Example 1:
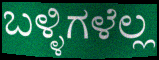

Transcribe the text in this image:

ಬಳ್ಳಿಗಳೆಲ್ಲ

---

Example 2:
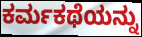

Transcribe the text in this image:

ಕರ್ಮಕಥೆಯನ್ನು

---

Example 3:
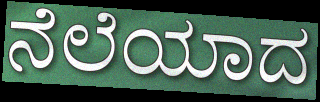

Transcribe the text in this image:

ನೆಲೆಯಾದ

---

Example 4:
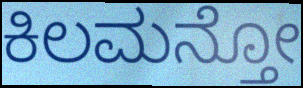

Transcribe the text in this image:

ಕಿಲಮನ್ತೋ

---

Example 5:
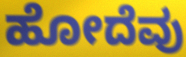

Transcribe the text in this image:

ಹೋದೆವು